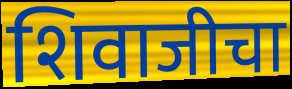
शिवाजीचा